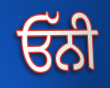
ਓੱਨੀ